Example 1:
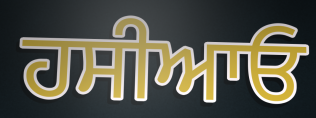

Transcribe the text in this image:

ਹਸੀਆਓ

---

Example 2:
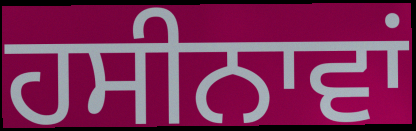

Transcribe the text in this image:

ਹਸੀਨਾਵਾਂ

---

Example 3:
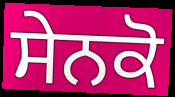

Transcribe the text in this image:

ਸੇਨਕੋ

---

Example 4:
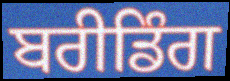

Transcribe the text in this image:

ਬਰੀਡਿੰਗ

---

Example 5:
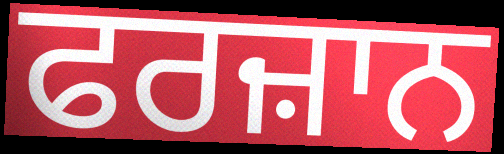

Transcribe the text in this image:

ਫਰਜ਼ਾਨ